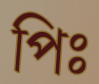
পিঃ